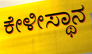
ಕೇಳೀಸ್ಥಾನ